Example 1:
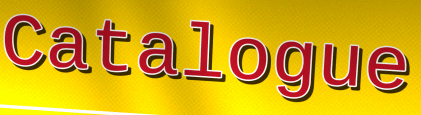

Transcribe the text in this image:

Catalogue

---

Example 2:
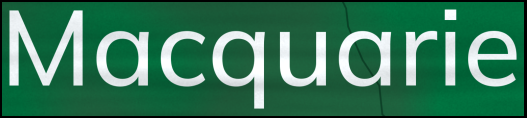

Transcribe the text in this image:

Macquarie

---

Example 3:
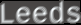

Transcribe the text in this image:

Leeds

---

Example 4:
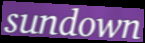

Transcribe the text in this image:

sundown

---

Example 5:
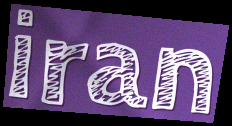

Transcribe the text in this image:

iran